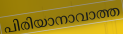
പിരിയാനാവാത്ത